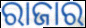
ରାଜାର